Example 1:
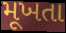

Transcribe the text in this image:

મૂખતા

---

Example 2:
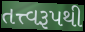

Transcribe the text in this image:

તત્ત્વરૂપથી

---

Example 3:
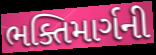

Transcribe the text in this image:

ભક્તિમાર્ગની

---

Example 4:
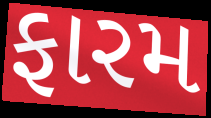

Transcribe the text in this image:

ફારમ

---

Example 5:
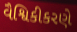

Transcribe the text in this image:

વૈશ્વિકીકરણે